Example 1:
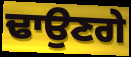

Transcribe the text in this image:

ਢਾਉਣਗੇ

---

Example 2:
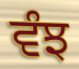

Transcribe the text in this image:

ਵੰਝ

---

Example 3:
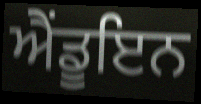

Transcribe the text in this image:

ਐਂਡੂਇਨ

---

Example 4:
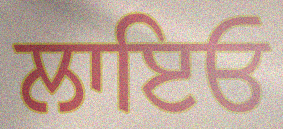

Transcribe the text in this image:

ਲਾਇਓ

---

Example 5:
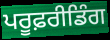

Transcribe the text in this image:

ਪਰੂਫ਼ਰੀਡਿੰਗ